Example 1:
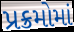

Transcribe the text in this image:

પ્રક્રમોમાં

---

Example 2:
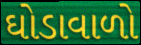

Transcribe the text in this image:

ઘોડાવાળો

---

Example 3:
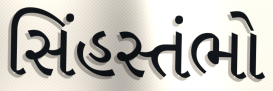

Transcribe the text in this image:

સિંહસ્તંભો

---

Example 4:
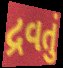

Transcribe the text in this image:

દ્રવતું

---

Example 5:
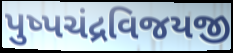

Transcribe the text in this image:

પુષ્પચંદ્રવિજયજી